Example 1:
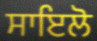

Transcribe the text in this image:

ਸਾਇਲੋ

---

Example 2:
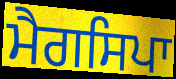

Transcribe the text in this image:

ਮੈਗਸਿਪਾ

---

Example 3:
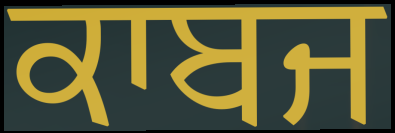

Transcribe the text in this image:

ਕਾਬਜ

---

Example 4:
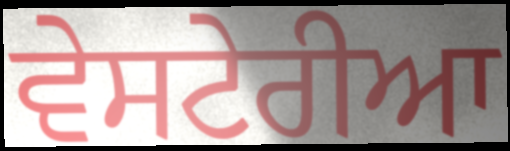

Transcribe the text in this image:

ਵੇਸਟੇਰੀਆ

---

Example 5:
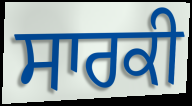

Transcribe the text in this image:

ਸਾਰਕੀ